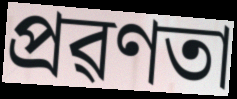
প্ৰৱণতা